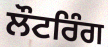
ਲੌਟਰਿੰਗ